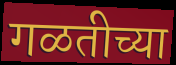
गळतीच्या